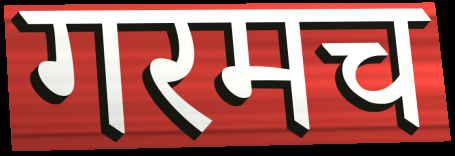
गरमच